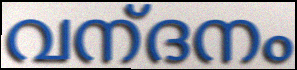
വന്‌ദനം